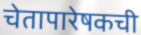
चेतापारेषकची